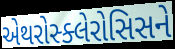
એથરોસ્ક્લેરોસિસને